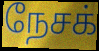
நேசக்